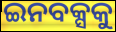
ଇନବକ୍ସକୁ